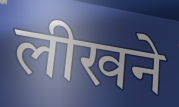
लीखने